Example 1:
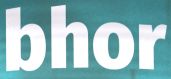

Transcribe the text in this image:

bhor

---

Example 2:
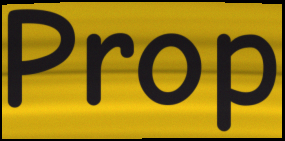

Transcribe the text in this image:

Prop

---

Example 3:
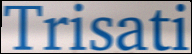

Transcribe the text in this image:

Trisati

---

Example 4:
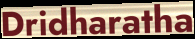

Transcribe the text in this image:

Dridharatha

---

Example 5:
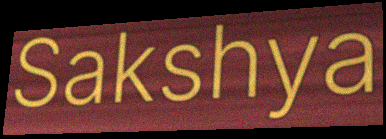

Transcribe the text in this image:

Sakshya